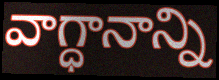
వాగ్ధానాన్ని